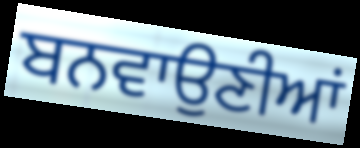
ਬਨਵਾਉਣੀਆਂ